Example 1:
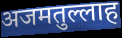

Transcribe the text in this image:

अजमतुल्लाह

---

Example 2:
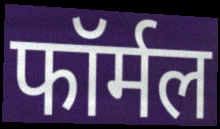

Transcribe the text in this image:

फॉर्मल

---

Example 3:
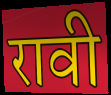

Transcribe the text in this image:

रावी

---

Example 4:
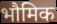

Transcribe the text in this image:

भौमिक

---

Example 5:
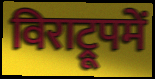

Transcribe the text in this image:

विराट्रूपमें